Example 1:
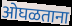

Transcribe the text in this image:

ओघळताना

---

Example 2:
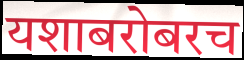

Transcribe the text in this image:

यशाबरोबरच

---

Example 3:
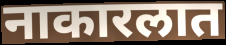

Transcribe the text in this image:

नाकारलात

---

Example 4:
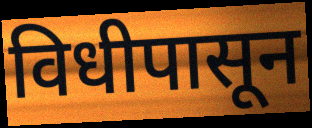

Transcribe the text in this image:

विधीपासून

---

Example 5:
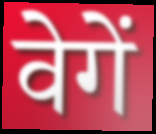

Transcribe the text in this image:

वेगें